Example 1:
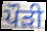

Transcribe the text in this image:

ਪੌੜੀ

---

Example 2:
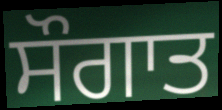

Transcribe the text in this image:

ਸੌਗਾਤ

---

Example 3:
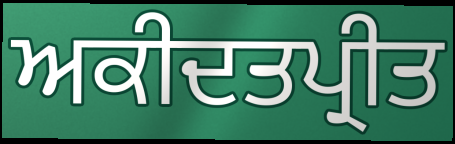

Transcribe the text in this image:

ਅਕੀਦਤਪ੍ਰੀਤ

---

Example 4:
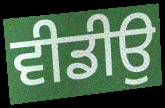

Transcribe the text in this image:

ਵੀਡੀਉ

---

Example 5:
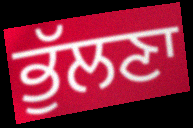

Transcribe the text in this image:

ਭੁੱਲਣਾ